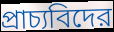
প্রাচ্যবিদের